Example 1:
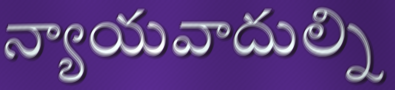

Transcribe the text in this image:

న్యాయవాదుల్ని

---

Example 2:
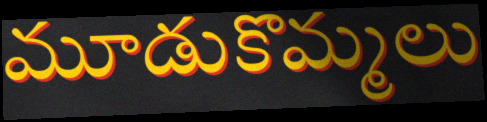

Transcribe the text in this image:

మూడుకొమ్మలు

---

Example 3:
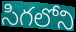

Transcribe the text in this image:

సిగలోని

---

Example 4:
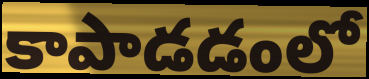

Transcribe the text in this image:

కాపాడడంలో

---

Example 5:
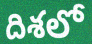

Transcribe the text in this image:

దిశలో